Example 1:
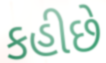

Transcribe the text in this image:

કહીછે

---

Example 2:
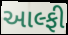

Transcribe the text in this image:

આલ્ફી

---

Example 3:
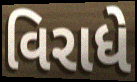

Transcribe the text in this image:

વિરાધે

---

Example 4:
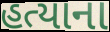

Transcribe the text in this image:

હત્યાના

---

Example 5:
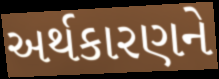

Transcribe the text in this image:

અર્થકારણને